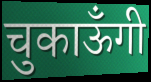
चुकाऊँगी